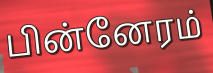
பின்னேரம்